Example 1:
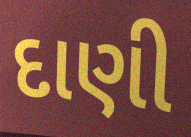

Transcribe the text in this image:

દાણી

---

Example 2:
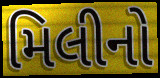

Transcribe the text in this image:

મિલીનો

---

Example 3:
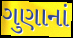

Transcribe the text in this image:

ગુણાનાં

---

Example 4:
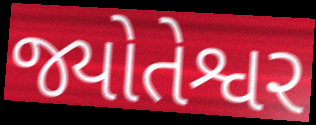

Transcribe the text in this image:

જ્યોતેશ્વર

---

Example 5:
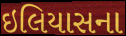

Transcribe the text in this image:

ઇલિયાસના